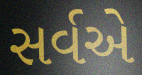
સર્વએ